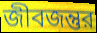
জীবজন্তুর